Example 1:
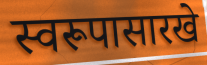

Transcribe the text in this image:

स्वरूपासारखे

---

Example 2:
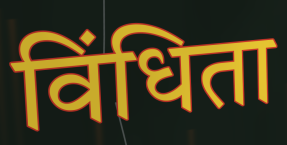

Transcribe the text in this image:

विंधिता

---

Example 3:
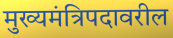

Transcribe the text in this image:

मुख्यमंत्रिपदावरील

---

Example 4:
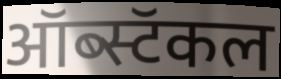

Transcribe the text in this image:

ऑब्स्टॅकल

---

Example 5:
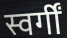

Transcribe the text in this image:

स्वर्गीं